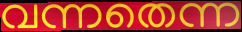
വന്നതെന്ന